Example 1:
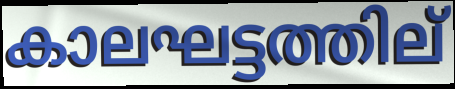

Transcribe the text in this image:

കാലഘട്ടത്തില്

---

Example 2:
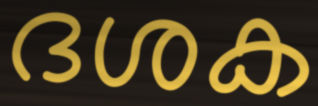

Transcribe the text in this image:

ദശക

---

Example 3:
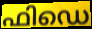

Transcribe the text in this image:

ഫിഡെ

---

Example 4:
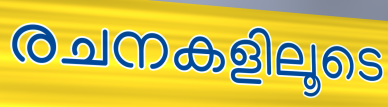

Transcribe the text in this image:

രചനകളിലൂടെ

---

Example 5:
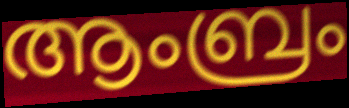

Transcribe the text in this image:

ആംബ്രം